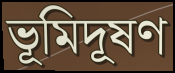
ভূমিদূষণ